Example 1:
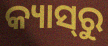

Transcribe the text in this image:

କ୍ୟାସ୍‌ରୁ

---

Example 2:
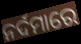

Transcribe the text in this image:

ନର୍ଦମାରେ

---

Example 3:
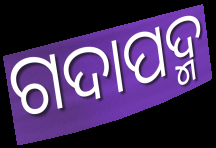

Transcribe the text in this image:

ଗଦାପଦ୍ମ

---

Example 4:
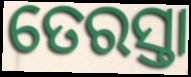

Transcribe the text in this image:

ତେରସ୍ତା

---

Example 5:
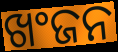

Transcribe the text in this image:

ଖଂଜନ